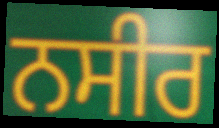
ਨਸੀਰ